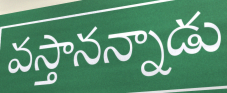
వస్తానన్నాడు